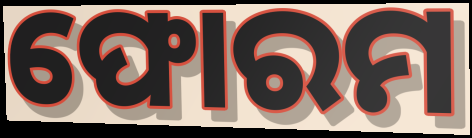
ଫୋରମ